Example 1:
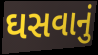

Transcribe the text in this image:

ઘસવાનું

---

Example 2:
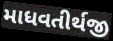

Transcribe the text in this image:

માધવતીર્થજી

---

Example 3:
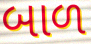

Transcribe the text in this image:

બાળ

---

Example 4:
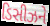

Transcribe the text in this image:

ડિસીઝને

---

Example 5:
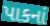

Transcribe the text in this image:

પાકનાં